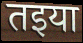
तइया